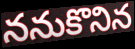
ననుకొనిన